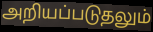
அறியப்படுதலும்